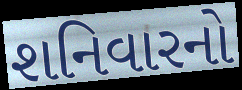
શનિવારનો